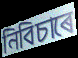
নিবিচাৰে